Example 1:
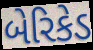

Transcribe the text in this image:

બેરિકેડ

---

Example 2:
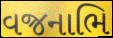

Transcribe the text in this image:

વજ્રનાભિ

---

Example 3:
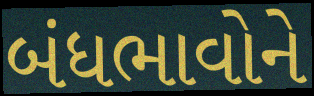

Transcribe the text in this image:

બંધભાવોને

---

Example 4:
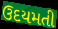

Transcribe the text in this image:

ઉદયમતી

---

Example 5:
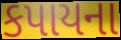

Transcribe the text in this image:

કપાયના